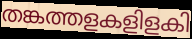
തങ്കത്തളകളിളകി